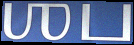
ஶப